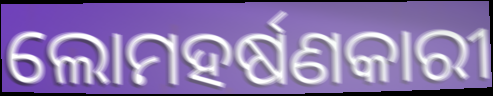
ଲୋମହର୍ଷଣକାରୀ